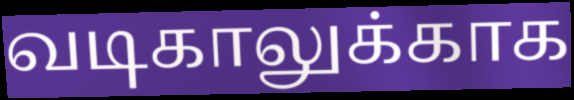
வடிகாலுக்காக